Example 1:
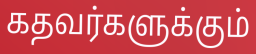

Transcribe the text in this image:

கதவர்களுக்கும்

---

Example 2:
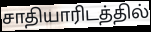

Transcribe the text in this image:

சாதியாரிடத்தில்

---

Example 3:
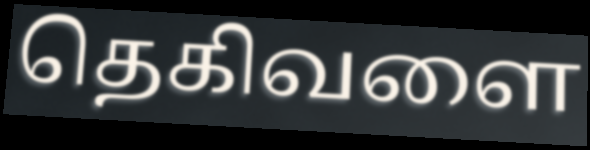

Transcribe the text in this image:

தெகிவளை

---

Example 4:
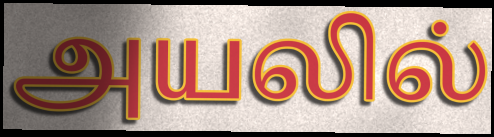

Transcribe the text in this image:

அயலில்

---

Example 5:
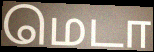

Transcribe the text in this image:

மெடா